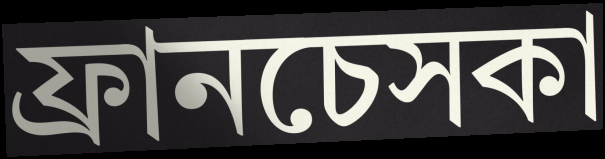
ফ্রানচেসকা